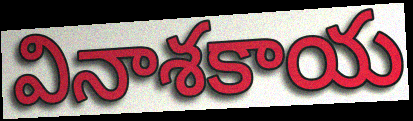
వినాశకాయ